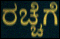
ರಚ್ಚೆಗೆ